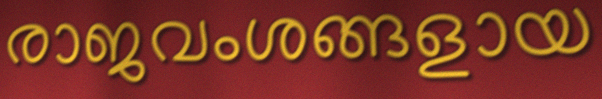
രാജവംശങ്ങളായ